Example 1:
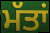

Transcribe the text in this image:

ਮੱਤਾਂ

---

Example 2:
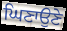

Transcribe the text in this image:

ਘਿਣਾਉਣੇ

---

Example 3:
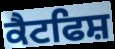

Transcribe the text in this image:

ਕੈਟਫਿਸ਼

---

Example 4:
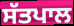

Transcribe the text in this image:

ਸੱਤਪਾਲ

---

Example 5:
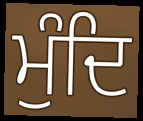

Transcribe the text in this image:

ਮੁੰਦਿ